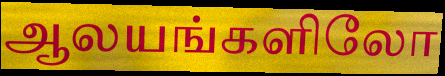
ஆலயங்களிலோ